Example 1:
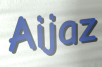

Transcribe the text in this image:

Aijaz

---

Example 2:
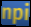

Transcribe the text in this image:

npi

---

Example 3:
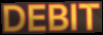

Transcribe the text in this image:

DEBIT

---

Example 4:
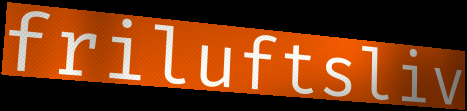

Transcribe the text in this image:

friluftsliv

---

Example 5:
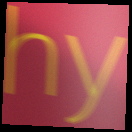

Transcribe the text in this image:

hy